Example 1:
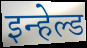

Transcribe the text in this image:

इन्हेल्ड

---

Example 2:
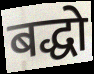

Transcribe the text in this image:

बद्धो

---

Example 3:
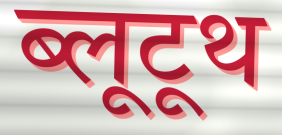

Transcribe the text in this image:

ब्‍लूटूथ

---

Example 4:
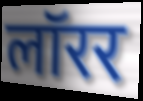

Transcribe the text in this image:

लॉरर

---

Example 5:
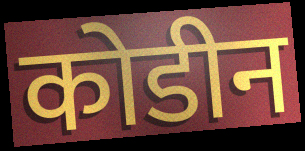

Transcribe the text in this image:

कोडीन